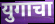
युगाचा